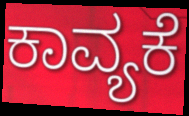
ಕಾವ್ಯಕೆ